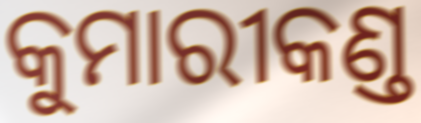
କୁମାରୀକଣ୍ଡ